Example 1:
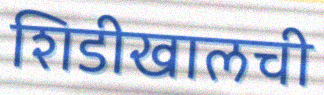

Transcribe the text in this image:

शिडीखालची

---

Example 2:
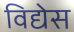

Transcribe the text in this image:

विद्येस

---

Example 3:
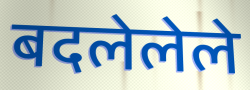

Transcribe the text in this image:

बदलेलेले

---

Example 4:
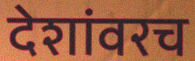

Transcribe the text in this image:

देशांवरच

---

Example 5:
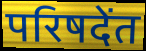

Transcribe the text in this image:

परिषदेंत